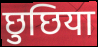
छुछिया